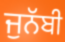
ਜੁਨੱਬੀ